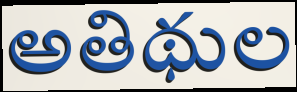
అతిథుల